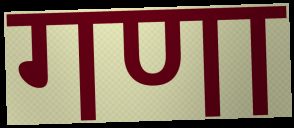
गणा